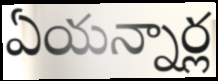
ఏయన్నార్ల